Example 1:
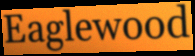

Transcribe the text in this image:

Eaglewood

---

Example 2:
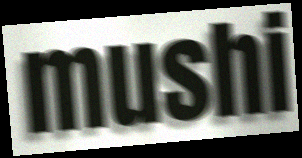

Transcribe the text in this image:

mushi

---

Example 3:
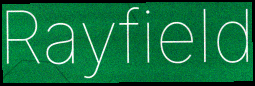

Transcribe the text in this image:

Rayfield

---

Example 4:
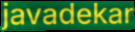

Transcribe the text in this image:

javadekar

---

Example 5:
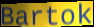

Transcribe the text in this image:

Bartok